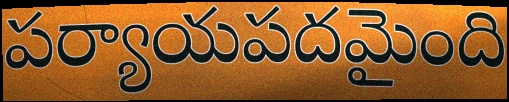
పర్యాయపదమైంది